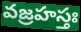
వజ్రహస్తః